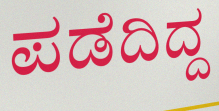
ಪಡೆದಿದ್ದ